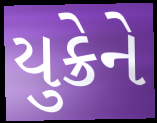
યુક્રેને